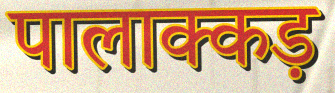
पालाक्कड़